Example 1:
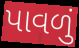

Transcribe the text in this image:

પાવળું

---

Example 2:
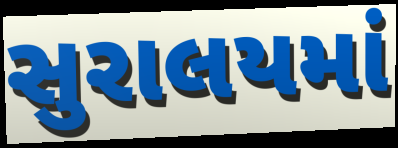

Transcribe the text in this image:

સુરાલયમાં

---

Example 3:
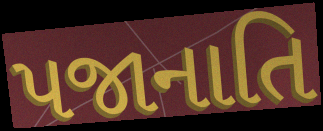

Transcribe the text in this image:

પજાનાતિ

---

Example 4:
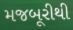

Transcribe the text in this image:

મજબૂરીથી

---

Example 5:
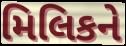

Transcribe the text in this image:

મિલિકને